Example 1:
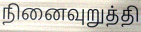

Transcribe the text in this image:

நினைவுறுத்தி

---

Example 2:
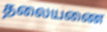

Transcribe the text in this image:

தலையணை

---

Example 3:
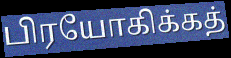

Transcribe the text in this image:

பிரயோகிக்கத்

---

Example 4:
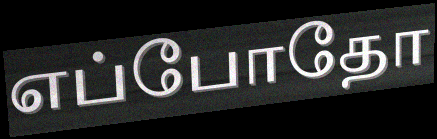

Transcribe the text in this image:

எப்போதோ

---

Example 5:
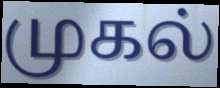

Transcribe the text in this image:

முகல்